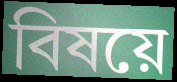
বিষয়ে